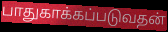
பாதுகாக்கப்படுவதன்